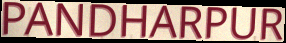
PANDHARPUR